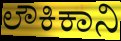
ಲೌಕಿಕಾನಿ